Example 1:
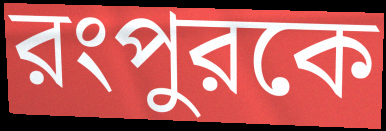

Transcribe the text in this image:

রংপুরকে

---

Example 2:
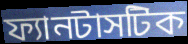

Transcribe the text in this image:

ফ্যানটাসটিক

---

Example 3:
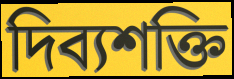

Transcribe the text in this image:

দিব্যশক্তি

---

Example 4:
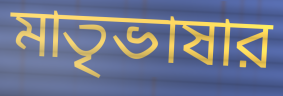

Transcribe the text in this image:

মাতৃভাষার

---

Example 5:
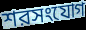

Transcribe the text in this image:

শরসংযোগ